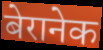
बेरानेक